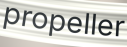
propeller